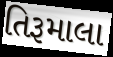
તિરૂમાલા